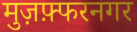
मुज़फ़्फरनगर